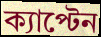
ক্যাপ্টেন